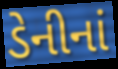
ડેનીનાં